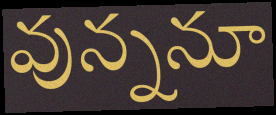
వున్ననూ